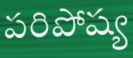
పరిపోష్య